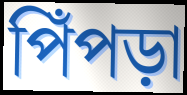
পিঁপড়া